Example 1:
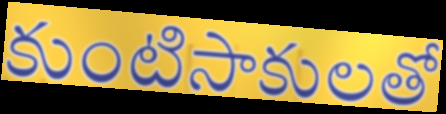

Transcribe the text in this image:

కుంటిసాకులతో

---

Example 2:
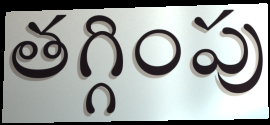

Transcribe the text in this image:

తగ్గింపు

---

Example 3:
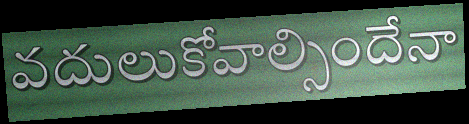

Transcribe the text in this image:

వదులుకోవాల్సిందేనా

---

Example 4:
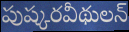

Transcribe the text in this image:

పుష్కరవీథులన్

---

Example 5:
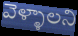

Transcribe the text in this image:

వెళ్ళాలని